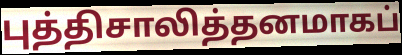
புத்திசாலித்தனமாகப்